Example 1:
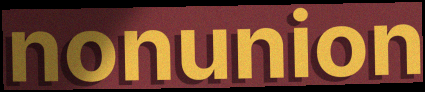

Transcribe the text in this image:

nonunion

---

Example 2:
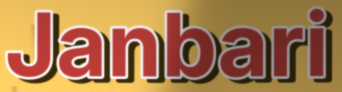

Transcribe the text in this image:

Janbari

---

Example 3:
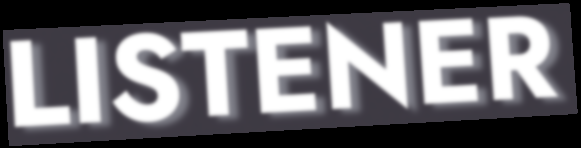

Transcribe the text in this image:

LISTENER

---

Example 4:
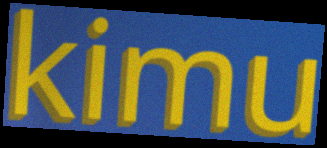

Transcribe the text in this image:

kimu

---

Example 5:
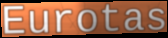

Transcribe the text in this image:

Eurotas